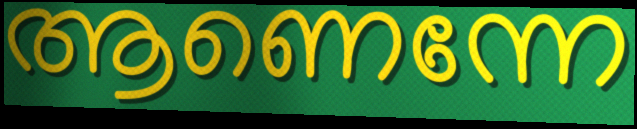
ആണെന്നേ